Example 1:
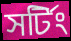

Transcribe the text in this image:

সর্টিং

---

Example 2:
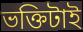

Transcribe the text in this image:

ভক্তিটাই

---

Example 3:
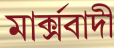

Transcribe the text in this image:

মার্ক্সবাদী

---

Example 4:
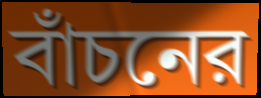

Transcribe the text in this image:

বাঁচনের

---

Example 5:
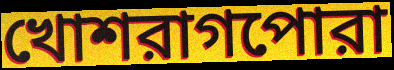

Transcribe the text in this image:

খোশরাগপোরা